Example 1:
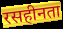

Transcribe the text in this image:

रसहीनता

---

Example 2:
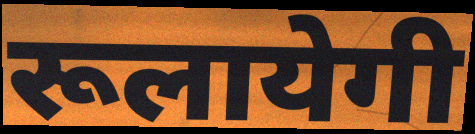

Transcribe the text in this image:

रूलायेगी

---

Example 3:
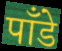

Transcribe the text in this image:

पाँडे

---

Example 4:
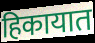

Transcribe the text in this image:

हिकायात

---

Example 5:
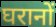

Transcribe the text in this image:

घरानों